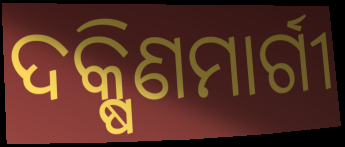
ଦକ୍ଷିଣମାର୍ଗୀ